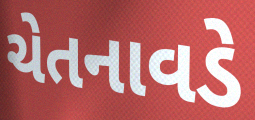
ચેતનાવડે